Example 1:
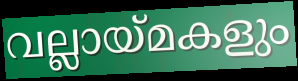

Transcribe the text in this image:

വല്ലായ്മകളും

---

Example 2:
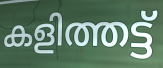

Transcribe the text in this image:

കളിത്തട്ട്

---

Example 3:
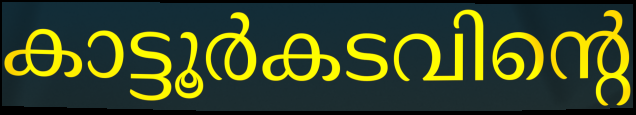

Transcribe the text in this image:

കാട്ടൂർകടവിന്റെ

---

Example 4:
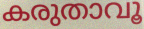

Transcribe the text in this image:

കരുതാവൂ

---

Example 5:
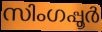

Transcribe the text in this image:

സിംഗപ്പൂർ